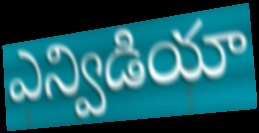
ఎన్విడియా